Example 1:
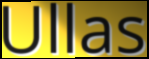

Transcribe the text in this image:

Ullas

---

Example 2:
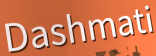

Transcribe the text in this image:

Dashmati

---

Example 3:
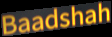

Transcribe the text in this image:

Baadshah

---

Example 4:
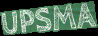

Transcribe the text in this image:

UPSMA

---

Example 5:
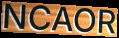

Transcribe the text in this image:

NCAOR